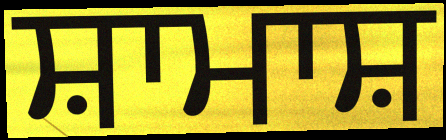
ਸ਼ਾਮਾਸ਼